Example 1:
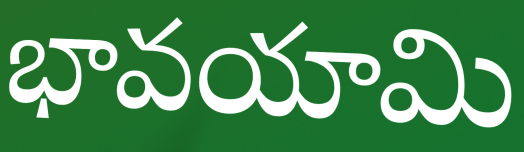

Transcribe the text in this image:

భావయామి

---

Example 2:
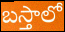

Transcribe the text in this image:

బస్తాలో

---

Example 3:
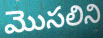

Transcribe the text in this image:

మొసలిని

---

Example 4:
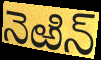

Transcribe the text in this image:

నెఱిన్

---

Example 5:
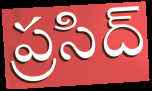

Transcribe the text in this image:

ప్రసిద్